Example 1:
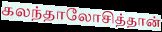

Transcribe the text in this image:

கலந்தாலோசித்தான்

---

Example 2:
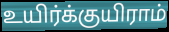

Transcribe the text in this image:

உயிர்க்குயிராம்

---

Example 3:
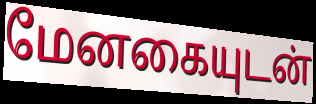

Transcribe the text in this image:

மேனகையுடன்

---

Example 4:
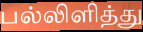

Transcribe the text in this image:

பல்லிளித்து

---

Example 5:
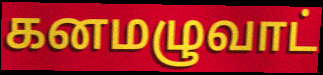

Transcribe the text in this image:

கனமழுவாட்